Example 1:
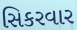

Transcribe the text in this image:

સિકરવાર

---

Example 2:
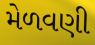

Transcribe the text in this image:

મેળવણી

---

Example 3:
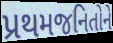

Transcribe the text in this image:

પ્રથમજનિતોને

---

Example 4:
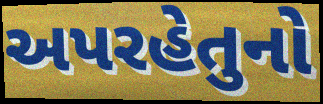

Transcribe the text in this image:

અપરહેતુનો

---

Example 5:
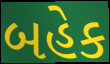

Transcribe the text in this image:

બહેક